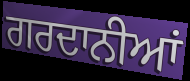
ਗਰਦਾਨੀਆਂ